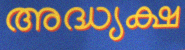
അദ്ധ്യക്ഷ